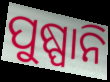
ପୁଷ୍ପାନି